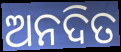
ଅନଦିତ